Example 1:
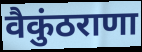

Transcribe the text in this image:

वैकुंठराणा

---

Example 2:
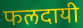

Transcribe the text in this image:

फलदायी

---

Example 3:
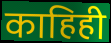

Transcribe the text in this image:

काहिही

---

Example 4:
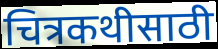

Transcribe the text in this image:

चित्रकथीसाठी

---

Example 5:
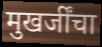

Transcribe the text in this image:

मुखर्जींचा